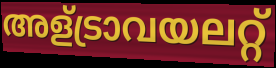
അള്ട്രാവയലറ്റ്